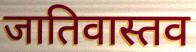
जातिवास्तव